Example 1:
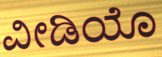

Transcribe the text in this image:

ವೀಡಿಯೊ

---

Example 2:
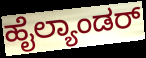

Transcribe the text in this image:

ಹೈಲ್ಯಾಂಡರ್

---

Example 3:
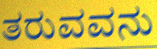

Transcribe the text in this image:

ತರುವವನು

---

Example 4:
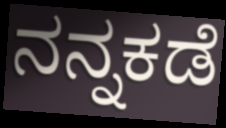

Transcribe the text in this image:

ನನ್ನಕಡೆ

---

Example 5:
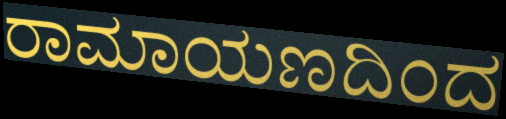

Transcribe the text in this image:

ರಾಮಾಯಣದಿಂದ